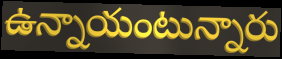
ఉన్నాయంటున్నారు